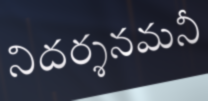
నిదర్శనమనీ